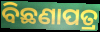
ବିଛଣାପତ୍ର